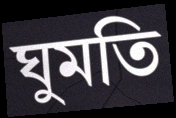
ঘুমতি